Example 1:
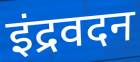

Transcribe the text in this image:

इंद्रवदन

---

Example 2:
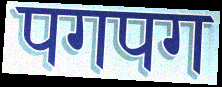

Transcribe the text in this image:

पगपग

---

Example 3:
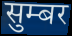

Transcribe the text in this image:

सुम्बर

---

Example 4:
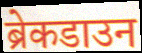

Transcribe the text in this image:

ब्रेकडाउन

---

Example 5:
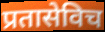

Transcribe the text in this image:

प्रतासेविच